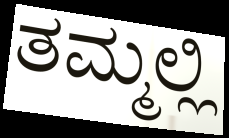
ತಮ್ಮಲ್ಲಿ